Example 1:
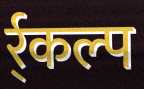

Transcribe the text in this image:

र्र्कल्प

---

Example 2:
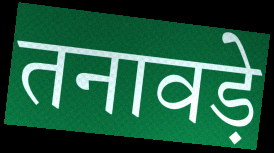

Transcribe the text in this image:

तनावड़े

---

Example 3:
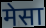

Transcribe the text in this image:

मेसा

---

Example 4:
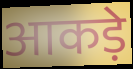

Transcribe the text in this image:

आकड़े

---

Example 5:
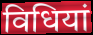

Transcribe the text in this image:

विधियां